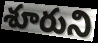
శూరుని